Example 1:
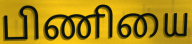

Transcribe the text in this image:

பிணியை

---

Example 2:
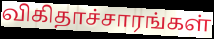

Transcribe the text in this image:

விகிதாச்சாரங்கள்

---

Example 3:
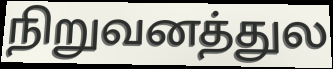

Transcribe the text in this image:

நிறுவனத்துல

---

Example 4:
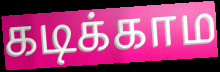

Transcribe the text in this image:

கடிக்காம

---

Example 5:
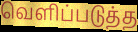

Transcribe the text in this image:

வெளிப்படுத்த